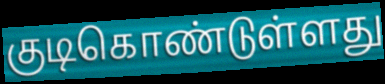
குடிகொண்டுள்ளது